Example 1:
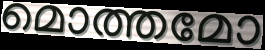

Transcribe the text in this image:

മൊത്തമോ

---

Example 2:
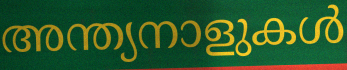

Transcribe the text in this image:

അന്ത്യനാളുകൾ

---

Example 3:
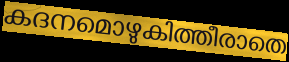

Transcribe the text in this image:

കദനമൊഴുകിത്തീരാതെ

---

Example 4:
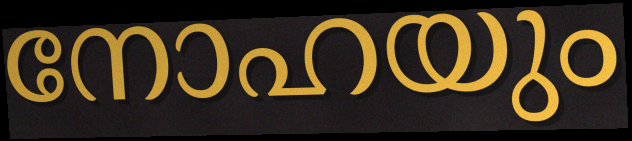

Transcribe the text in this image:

നോഹയും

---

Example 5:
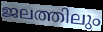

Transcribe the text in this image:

ജലത്തിലും